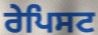
ਰੇਪਿਸਟ